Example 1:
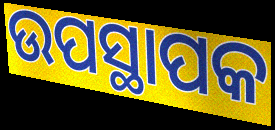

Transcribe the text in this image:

ଉପସ୍ଥାପକ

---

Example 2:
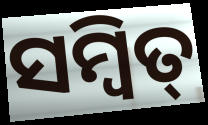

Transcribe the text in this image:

ସମ୍ବିତ୍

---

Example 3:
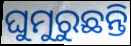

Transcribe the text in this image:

ଘୁମୁରୁଛନ୍ତି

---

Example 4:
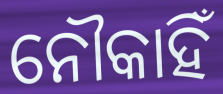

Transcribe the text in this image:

ନୌକାହିଁ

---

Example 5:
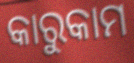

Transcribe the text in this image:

କାରୁକାମ